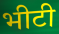
भीटी